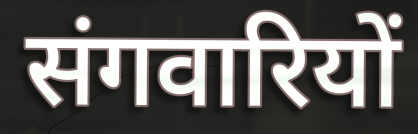
संगवारियों